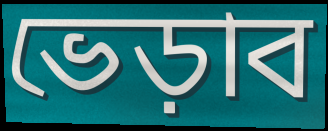
ভেড়াব